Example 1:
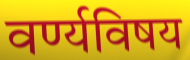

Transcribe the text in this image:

वर्ण्यविषय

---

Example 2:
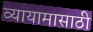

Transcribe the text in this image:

व्यायामासाठी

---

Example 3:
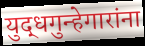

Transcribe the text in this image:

युद्धगुन्हेगारांना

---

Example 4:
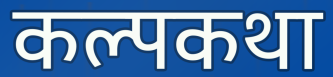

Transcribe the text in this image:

कल्पकथा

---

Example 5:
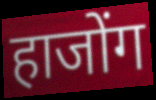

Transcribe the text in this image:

हाजोंग